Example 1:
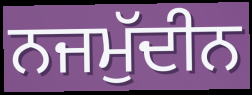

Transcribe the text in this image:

ਨਜਮੁੱਦੀਨ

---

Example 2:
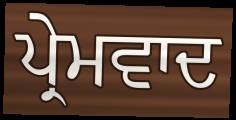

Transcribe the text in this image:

ਪ੍ਰੇਮਵਾਦ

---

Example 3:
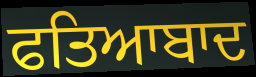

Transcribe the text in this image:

ਫਤਿਆਬਾਦ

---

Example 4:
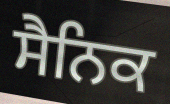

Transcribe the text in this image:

ਸੈਨਿਕ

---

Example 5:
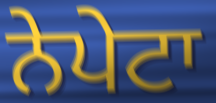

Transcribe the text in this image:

ਨੇਪੇਟਾ